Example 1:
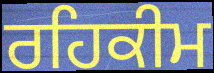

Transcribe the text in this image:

ਰਹਿਕੀਮ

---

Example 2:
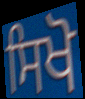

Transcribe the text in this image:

ਸਿਖੋ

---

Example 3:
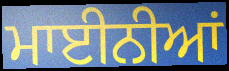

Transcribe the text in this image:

ਮਾਈਨੀਆਂ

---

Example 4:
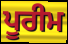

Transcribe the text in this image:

ਪੂਰੀਮ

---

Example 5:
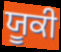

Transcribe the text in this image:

ਯੂਕੀ